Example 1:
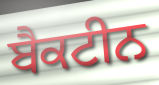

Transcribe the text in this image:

ਬੈਕਟੀਨ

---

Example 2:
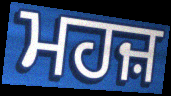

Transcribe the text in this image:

ਮਹਜ਼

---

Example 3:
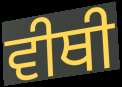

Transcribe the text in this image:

ਵੀਥੀ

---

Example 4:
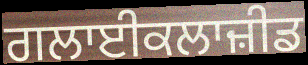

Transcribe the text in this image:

ਗਲਾਈਕਲਾਜ਼ੀਡ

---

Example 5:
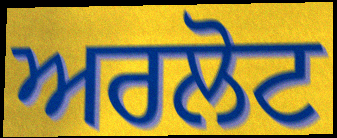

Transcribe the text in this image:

ਅਰਲੋਟ